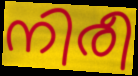
നിരീ